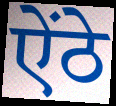
ऐंठे